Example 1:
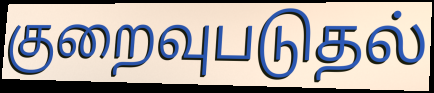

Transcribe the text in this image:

குறைவுபடுதல்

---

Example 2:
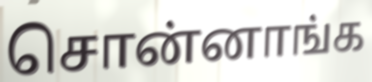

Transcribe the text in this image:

சொன்னாங்க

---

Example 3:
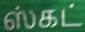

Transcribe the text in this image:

ஸ்கட்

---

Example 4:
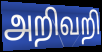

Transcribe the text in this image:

அறிவறி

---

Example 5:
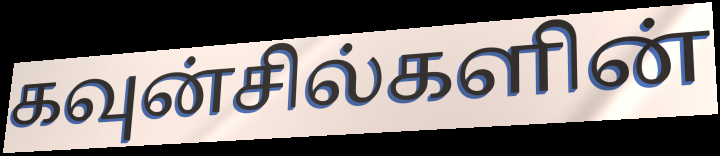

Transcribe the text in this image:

கவுன்சில்களின்